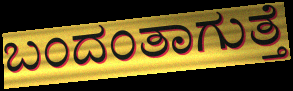
ಬಂದಂತಾಗುತ್ತೆ